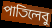
পাতিলেবু